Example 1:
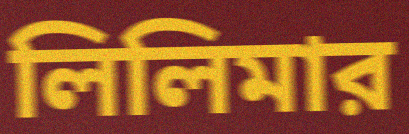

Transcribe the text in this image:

লিলিমার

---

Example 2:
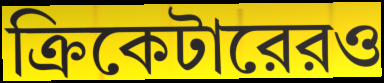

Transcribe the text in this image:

ক্রিকেটারেরও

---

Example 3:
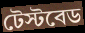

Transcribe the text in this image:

টেস্টবেড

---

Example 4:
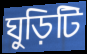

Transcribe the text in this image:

ঘুড়িটি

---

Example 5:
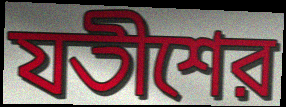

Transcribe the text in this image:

যতীশের